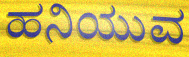
ಹನಿಯುವ